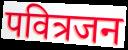
पवित्रजन